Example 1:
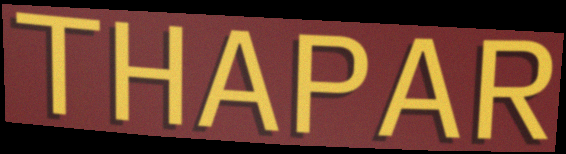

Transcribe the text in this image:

THAPAR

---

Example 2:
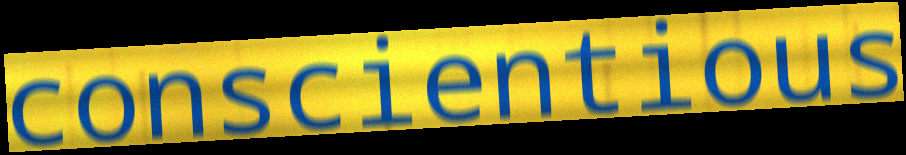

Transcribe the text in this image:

conscientious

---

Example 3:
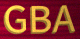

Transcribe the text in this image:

GBA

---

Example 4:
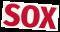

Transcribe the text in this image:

SOX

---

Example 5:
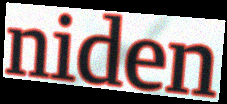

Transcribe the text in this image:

niden